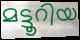
മട്ടൂറിയ